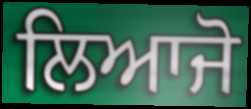
ਲਿਆਜੋ